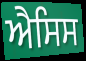
ਐਸਿਸ